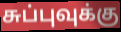
சுப்புவுக்கு